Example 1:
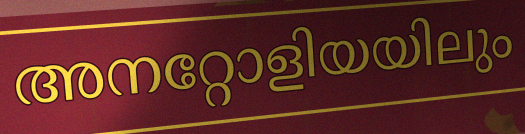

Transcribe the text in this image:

അനറ്റോളിയയിലും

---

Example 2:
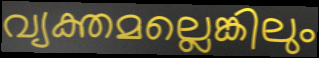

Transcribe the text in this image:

വ്യക്തമല്ലെങ്കിലും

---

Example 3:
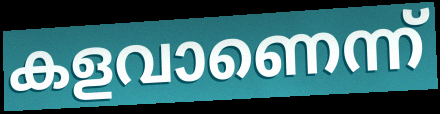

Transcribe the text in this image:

കളവാണെന്ന്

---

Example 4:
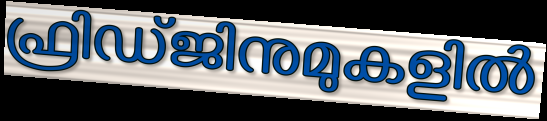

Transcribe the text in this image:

ഫ്രിഡ്ജിനുമുകളിൽ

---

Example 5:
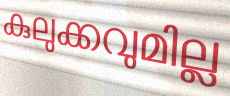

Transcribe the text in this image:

കുലുക്കവുമില്ല